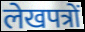
लेखपत्रों